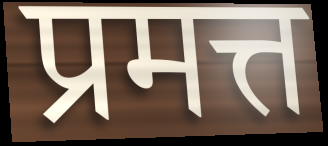
प्रमत्त